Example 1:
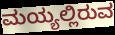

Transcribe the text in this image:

ಮಯ್ಯಲ್ಲಿರುವ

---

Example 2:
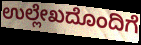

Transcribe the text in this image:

ಉಲ್ಲೇಖದೊಂದಿಗೆ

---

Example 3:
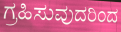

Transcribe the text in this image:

ಗ್ರಹಿಸುವುದರಿಂದ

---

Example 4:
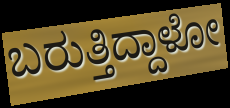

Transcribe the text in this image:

ಬರುತ್ತಿದ್ದಾಳೋ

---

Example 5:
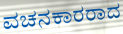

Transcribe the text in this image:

ವಚನಕಾರರಾದ